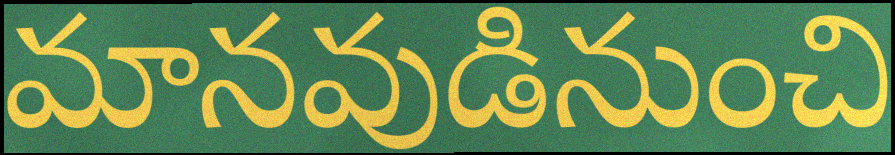
మానవుడినుంచి